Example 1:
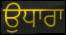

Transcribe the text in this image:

ਉਧਾਰਾ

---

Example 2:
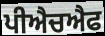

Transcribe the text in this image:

ਪੀਐਚਐਫ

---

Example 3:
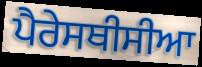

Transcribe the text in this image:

ਪੈਰੇਸਥੀਸੀਆ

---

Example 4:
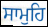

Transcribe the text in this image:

ਸਾਮੁਹਿ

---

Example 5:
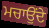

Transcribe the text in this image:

ਮਚਾਉਂਦੇ